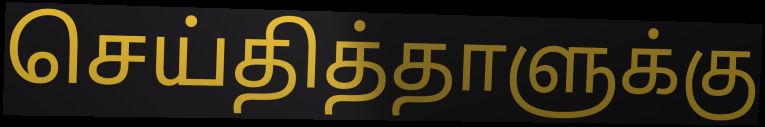
செய்தித்தாளுக்கு